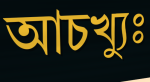
আচখ্যুঃ